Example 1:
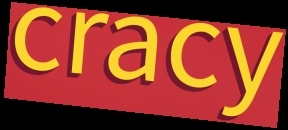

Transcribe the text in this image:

cracy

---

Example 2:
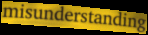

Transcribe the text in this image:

misunderstanding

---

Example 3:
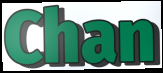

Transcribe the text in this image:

Chan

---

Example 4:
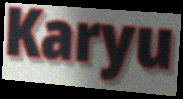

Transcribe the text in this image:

Karyu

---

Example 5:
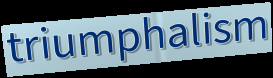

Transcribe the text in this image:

triumphalism